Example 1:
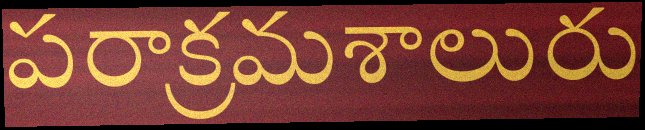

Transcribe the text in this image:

పరాక్రమశాలురు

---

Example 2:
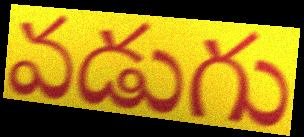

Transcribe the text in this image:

వడుగు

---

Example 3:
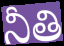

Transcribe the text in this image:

నీతి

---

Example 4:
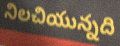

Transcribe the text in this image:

నిలచియున్నది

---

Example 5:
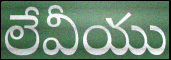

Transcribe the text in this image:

లేవీయు